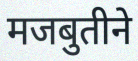
मजबुतीने